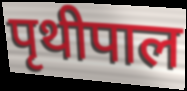
पृथीपाल